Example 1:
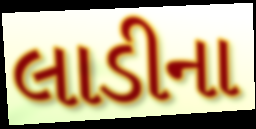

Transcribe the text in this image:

લાડીના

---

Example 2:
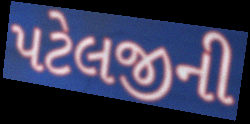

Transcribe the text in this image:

પટેલજીની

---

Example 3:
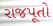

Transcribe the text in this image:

રાજપૂતો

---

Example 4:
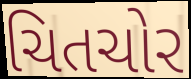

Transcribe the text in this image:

ચિતચોર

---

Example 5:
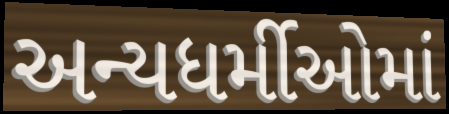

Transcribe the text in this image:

અન્યધર્મીઓમાં